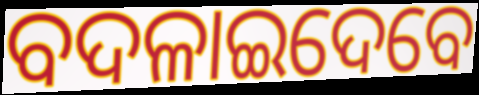
ବଦଳାଇଦେବେ